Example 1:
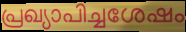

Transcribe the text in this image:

പ്രഖ്യാപിച്ചശേഷം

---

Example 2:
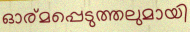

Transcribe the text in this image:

ഓര്മപ്പെടുത്തലുമായി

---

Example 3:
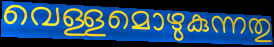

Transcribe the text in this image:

വെള്ളമൊഴുകുന്നതു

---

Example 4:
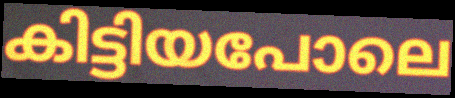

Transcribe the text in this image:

കിട്ടിയപോലെ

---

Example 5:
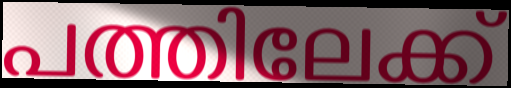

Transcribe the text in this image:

പത്തിലേക്ക്